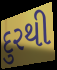
દુરથી